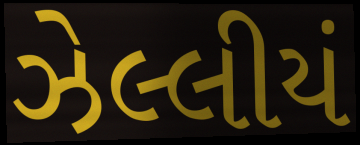
ઝેલ્લીયં